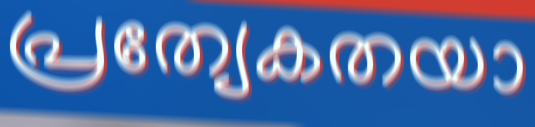
പ്രത്യേകതയാ